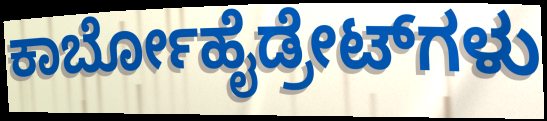
ಕಾರ್ಬೋಹೈಡ್ರೇಟ್‌ಗಳು